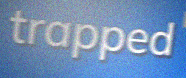
trapped